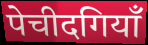
पेचीदगियाँ